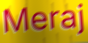
Meraj